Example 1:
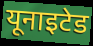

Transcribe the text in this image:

यूनाइटेड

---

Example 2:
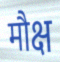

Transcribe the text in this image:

मौक्ष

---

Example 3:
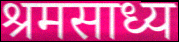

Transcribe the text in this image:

श्रमसाध्य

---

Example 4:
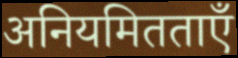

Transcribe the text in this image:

अनियमितताएँ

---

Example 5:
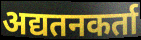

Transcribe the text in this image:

अद्यतनकर्ता